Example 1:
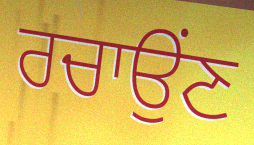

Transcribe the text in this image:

ਰਚਾਉਂਣ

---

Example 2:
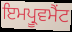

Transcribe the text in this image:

ਇਮਪ੍ਰੂਵਮੈਂਟ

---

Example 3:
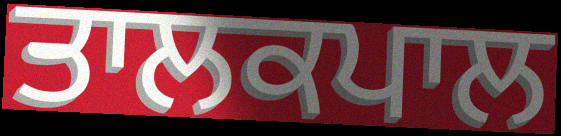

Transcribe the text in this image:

ਤਾਲਕਪਾਲ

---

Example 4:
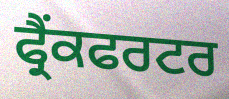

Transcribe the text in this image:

ਫ੍ਰੈਂਕਫਰਟਰ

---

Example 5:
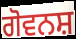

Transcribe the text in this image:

ਗੋਵਨਸ਼